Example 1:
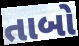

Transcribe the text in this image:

તાબો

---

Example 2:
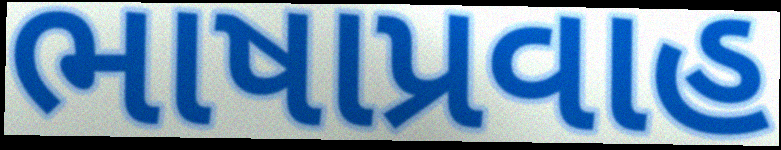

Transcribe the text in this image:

ભાષાપ્રવાહ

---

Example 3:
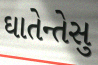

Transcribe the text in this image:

ઘાતેન્તેસુ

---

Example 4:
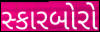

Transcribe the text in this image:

સ્કારબોરો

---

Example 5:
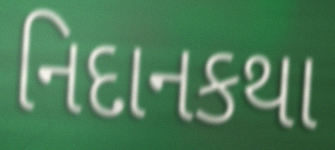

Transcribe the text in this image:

નિદાનકથા